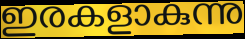
ഇരകളാകുന്നു